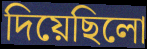
দিয়েছিলো